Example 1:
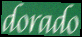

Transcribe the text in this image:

dorado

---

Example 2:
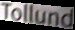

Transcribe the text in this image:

Tollund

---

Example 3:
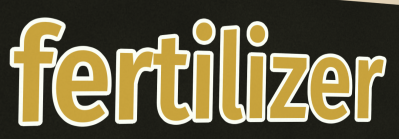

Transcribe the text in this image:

fertilizer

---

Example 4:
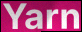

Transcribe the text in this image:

Yarn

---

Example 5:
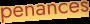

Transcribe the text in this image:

penances